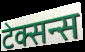
टेक्सन्स